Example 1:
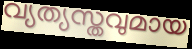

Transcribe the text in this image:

വ്യത്യസ്തവുമായ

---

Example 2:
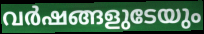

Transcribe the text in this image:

വർഷങ്ങളുടേയും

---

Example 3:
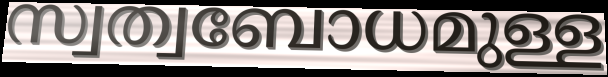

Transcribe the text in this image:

സ്വത്വബോധമുള്ള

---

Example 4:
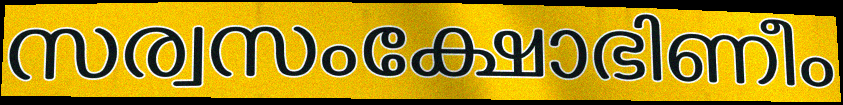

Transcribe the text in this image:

സര്വസംക്ഷോഭിണീം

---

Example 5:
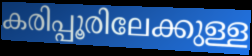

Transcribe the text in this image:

കരിപ്പൂരിലേക്കുള്ള